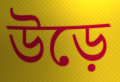
উড়ে